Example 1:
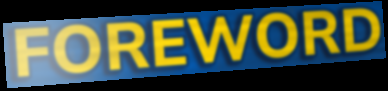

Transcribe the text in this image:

FOREWORD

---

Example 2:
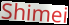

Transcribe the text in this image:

Shimei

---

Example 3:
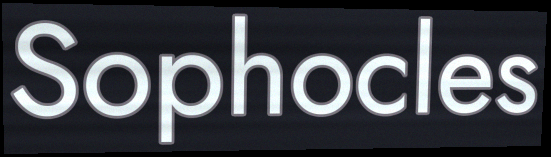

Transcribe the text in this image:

Sophocles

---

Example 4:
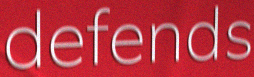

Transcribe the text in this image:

defends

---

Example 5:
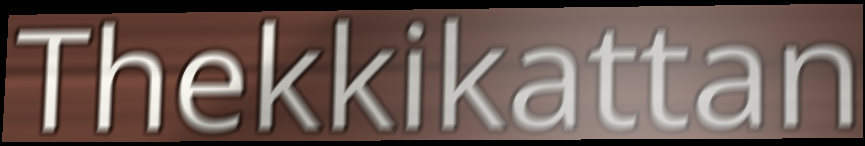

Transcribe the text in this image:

Thekkikattan